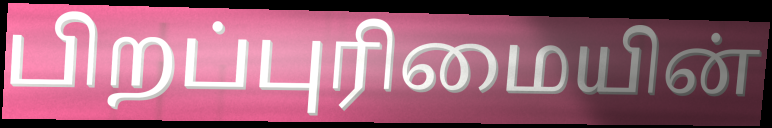
பிறப்புரிமையின்